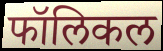
फॉलिकल